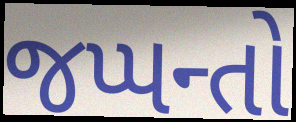
જપ્પન્તો